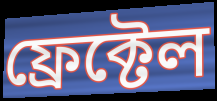
ফ্ৰেক্টেল